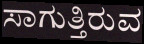
ಸಾಗುತ್ತಿರುವ